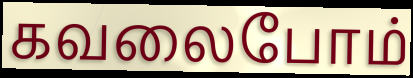
கவலைபோம்